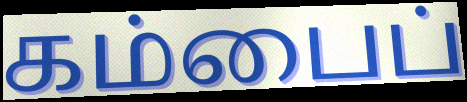
கம்பைப்